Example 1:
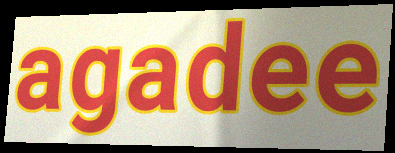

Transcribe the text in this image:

agadee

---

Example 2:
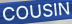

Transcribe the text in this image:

COUSIN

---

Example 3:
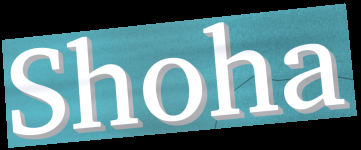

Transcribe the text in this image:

Shoha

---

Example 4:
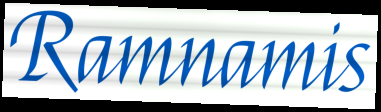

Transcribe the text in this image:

Ramnamis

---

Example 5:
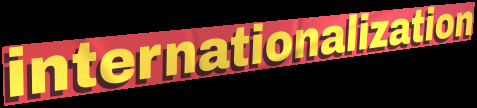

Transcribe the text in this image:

internationalization